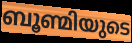
ബൂണ്മിയുടെ